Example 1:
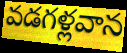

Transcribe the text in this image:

వడగళ్లవాన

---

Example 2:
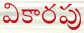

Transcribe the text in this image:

వికారపు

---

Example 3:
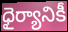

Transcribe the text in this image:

ధైర్యానికీ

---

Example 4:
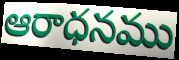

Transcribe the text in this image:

ఆరాధనము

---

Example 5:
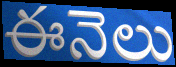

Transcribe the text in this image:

ఈనెలు